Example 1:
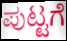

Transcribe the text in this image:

ಪುಟ್ಟಗೆ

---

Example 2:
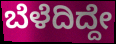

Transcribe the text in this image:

ಬೆಳೆದಿದ್ದೇ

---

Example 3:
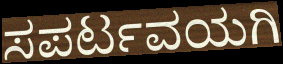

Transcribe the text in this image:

ಸಪರ್ಟವಯಗಿ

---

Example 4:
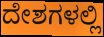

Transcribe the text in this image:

ದೇಶಗಳಲ್ಲಿ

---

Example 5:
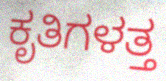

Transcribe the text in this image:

ಕೃತಿಗಳತ್ತ